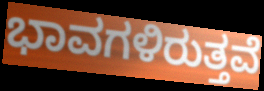
ಭಾವಗಳಿರುತ್ತವೆ